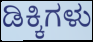
ಡಿಕ್ಕಿಗಳು